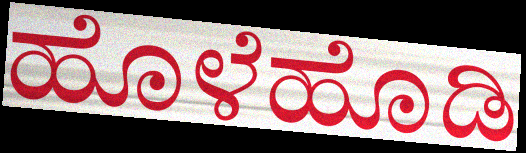
ಹೊಳೆಹೊಡಿ